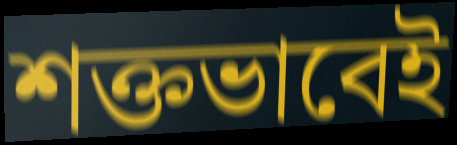
শক্তভাবেই